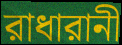
রাধারানী